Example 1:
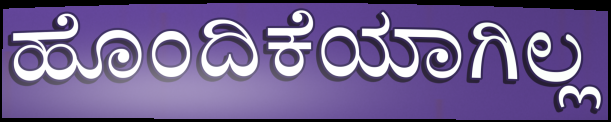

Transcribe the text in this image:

ಹೊಂದಿಕೆಯಾಗಿಲ್ಲ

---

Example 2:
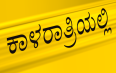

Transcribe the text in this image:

ಕಾಳರಾತ್ರಿಯಲ್ಲಿ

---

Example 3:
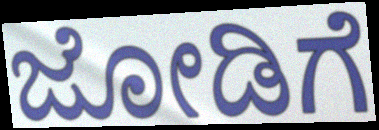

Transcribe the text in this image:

ಜೋಡಿಗೆ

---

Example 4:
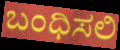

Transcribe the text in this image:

ಬಂಧಿಸಲಿ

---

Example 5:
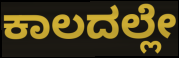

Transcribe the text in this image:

ಕಾಲದಲ್ಲೇ